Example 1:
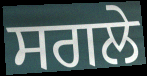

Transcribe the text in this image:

ਸਗਲੇ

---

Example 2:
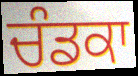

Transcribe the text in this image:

ਚੰਡਕਾ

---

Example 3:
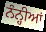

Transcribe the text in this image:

ਨੰਨ੍ਹੀਆਂ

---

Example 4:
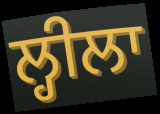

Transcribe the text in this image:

ਲ੍ਹੀਲਾ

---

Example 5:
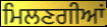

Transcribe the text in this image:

ਮਿਲਣਗੀਆਂ